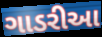
ગાડરીઆ